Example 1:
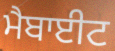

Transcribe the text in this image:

ਮੈਬਾਈਟ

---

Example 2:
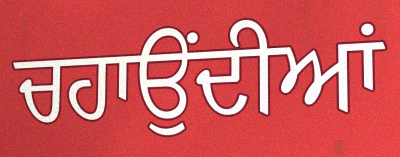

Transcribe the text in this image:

ਚਹਾਉਂਦੀਆਂ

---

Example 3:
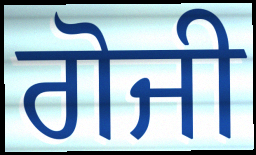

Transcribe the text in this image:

ਗੋਜੀ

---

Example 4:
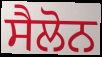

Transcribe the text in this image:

ਸੈਲੋਨ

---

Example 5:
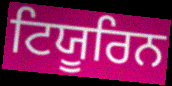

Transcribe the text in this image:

ਟਿਯੂਰਿਨ